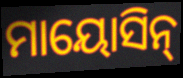
ମାୟୋସିନ୍